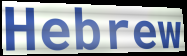
Hebrew